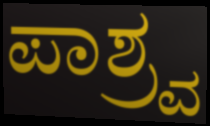
ಪಾಶ್ರ್ವ